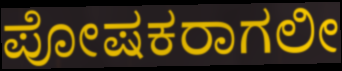
ಪೋಷಕರಾಗಲೀ